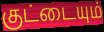
குட்டையும்